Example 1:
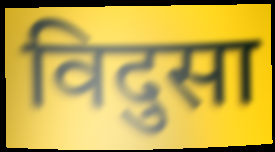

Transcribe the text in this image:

विदुसा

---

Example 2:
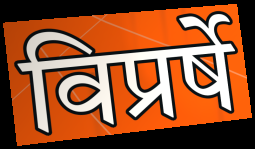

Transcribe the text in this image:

विप्रर्षे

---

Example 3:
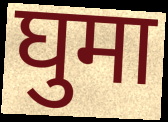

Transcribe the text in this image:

घुमा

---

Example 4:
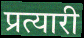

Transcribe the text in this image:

प्रत्यारी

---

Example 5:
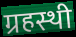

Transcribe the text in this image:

ग्रहस्थी